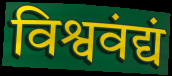
विश्ववंद्यं